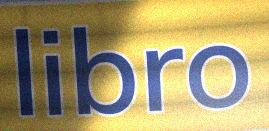
libro